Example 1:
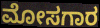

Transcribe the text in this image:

ಮೋಸಗಾರ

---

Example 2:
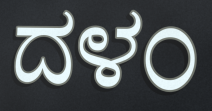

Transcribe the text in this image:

ದಳಂ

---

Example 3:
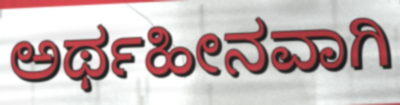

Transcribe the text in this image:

ಅರ್ಥಹೀನವಾಗಿ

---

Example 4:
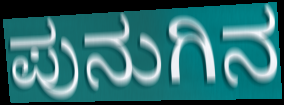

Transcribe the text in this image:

ಪುನುಗಿನ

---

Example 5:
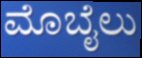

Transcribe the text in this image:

ಮೊಬೈಲು